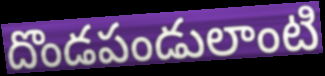
దొండపండులాంటి